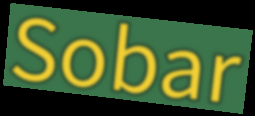
Sobar